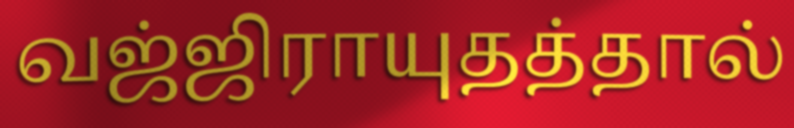
வஜ்ஜிராயுதத்தால்